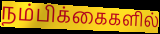
நம்பிக்கைகளில்